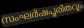
സംഘർഷപൂരിതവും